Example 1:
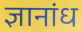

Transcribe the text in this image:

ज्ञानांध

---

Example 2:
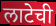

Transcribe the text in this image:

लाटेची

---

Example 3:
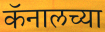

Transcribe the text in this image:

कॅनालच्या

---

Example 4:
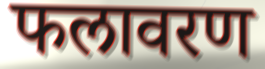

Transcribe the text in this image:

फलावरण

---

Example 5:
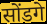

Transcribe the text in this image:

सोंडगे